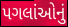
પગલાંઓનું